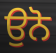
ਉਨੋ